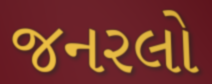
જનરલો